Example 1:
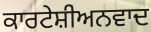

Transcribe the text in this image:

ਕਾਰਟੇਸ਼ੀਅਨਵਾਦ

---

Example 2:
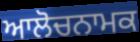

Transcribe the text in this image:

ਆਲੋਚਨਾਮਕ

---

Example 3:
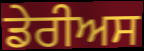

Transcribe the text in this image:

ਡੇਰੀਅਸ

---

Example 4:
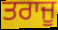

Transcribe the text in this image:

ਤਰਾਜੂ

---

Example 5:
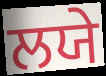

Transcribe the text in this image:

ਲਯੇ